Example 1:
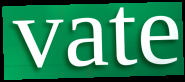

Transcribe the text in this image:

vate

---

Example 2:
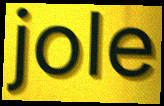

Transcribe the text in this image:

jole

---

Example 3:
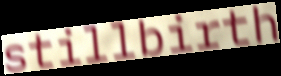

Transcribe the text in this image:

stillbirth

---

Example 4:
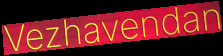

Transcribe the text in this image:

Vezhavendan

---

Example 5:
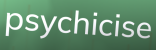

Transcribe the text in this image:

psychicise